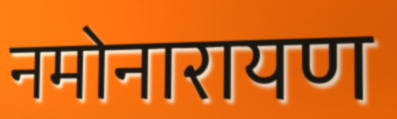
नमोनारायण